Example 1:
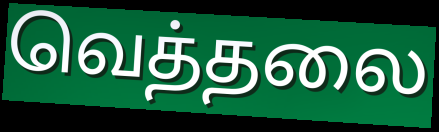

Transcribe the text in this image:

வெத்தலை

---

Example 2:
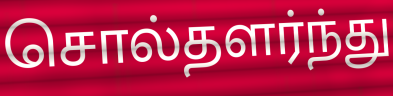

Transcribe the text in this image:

சொல்தளர்ந்து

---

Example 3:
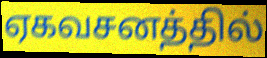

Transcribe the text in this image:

ஏகவசனத்தில்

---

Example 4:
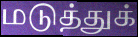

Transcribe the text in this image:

மடுத்துக்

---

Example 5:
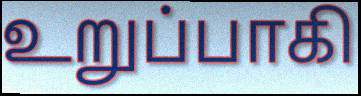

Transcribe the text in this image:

உறுப்பாகி